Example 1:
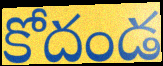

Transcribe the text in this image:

కోదండ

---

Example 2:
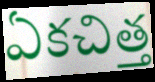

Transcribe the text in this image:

ఏకచిత్త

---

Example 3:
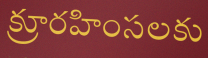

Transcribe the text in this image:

క్రూరహింసలకు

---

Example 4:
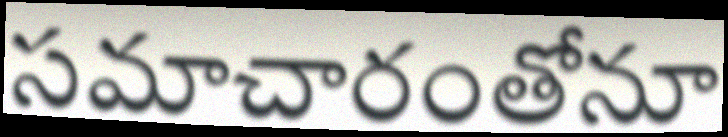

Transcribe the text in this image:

సమాచారంతోనూ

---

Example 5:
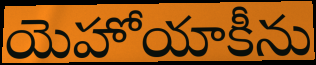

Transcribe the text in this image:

యెహోయాకీను